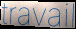
travail